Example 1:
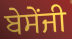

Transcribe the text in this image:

ਬੇਸੇਂਜੀ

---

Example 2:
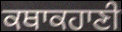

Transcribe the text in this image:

ਕਥਾਕਹਾਣੀ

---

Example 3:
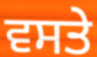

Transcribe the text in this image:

ਵਸਤੇ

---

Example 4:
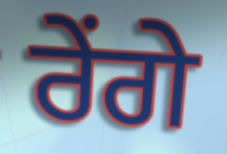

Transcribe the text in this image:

ਰੇਂਗੇ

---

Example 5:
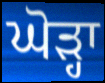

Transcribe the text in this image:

ਘੋੜ੍ਹਾ